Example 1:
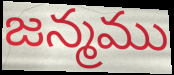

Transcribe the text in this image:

జన్మము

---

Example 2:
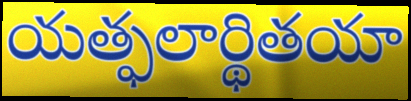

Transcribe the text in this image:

యత్ఫలార్థితయా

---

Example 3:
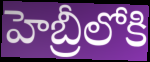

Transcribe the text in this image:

హెబ్రీలోకి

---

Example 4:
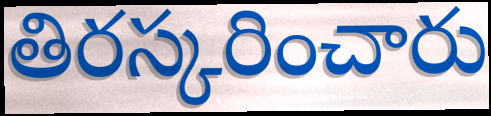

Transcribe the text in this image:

తిరస్కరించారు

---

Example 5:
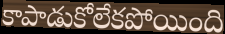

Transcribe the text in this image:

కాపాడుకోలేకపోయింది